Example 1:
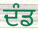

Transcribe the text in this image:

ਦੰਡ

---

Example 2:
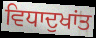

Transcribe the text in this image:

ਵਿਧਾਦੁਖਾਂਤ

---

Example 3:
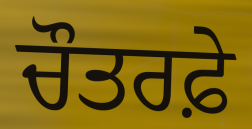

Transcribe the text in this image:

ਚੌਤਰਫ਼ੇ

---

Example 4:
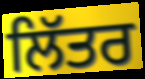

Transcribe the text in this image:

ਲਿੱਤਰ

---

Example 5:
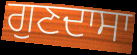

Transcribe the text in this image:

ਗੁਣਦਾਸਾ